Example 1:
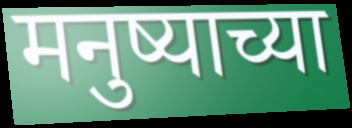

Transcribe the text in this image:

मनुष्याच्या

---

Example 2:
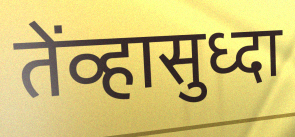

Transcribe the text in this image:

तेंव्हासुध्दा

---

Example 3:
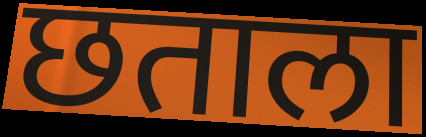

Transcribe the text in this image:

छताला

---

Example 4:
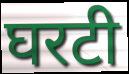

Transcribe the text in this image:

घरटी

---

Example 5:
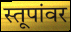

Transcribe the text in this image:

स्तूपांवर